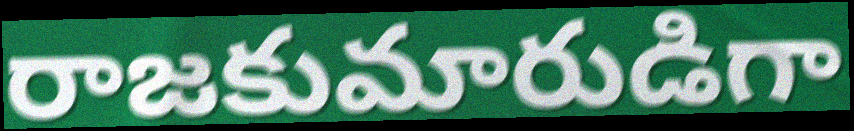
రాజకుమారుడిగా